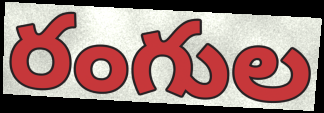
రంగుల